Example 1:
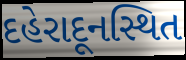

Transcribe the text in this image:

દહેરાદૂનસ્થિત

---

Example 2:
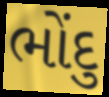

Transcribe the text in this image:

ભોંદુ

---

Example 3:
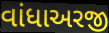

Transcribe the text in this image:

વાંધાઅરજી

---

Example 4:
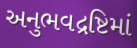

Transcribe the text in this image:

અનુભવદ્રષ્ટિમાં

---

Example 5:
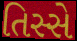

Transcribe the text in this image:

તિસ્સે